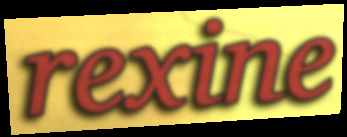
rexine